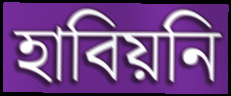
হাবিয়নি